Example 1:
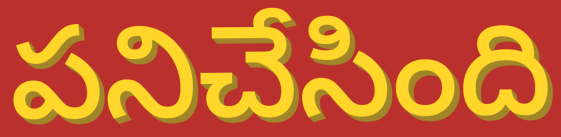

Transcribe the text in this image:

పనిచేసింది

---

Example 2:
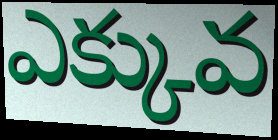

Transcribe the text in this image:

ఎక్కువ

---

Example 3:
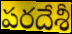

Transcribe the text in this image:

పరదేశీ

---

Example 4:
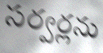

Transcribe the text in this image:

సర్వర్లను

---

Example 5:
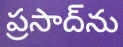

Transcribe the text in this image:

ప్రసాద్‌ను